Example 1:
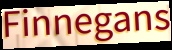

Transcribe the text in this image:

Finnegans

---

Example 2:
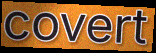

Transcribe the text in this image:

covert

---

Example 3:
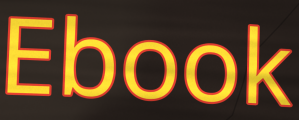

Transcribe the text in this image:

Ebook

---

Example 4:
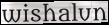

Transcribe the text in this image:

wishalun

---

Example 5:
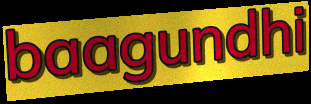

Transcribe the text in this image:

baagundhi